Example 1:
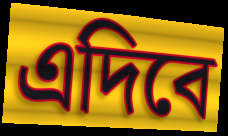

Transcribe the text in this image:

এদিবে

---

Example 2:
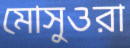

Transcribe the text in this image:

মোসুওরা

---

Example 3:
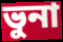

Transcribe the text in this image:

ভুনা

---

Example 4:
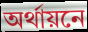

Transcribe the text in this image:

অর্থায়নে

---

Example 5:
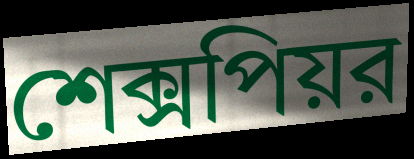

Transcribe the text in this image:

শেক্সপিয়র